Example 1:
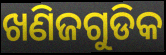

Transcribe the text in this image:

ଖଣିଜଗୁଡିକ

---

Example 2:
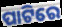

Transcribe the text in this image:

ପାଟିରେ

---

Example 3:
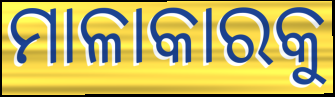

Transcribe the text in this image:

ମାଳାକାରକୁ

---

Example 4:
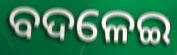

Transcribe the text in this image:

ବଦଳେଇ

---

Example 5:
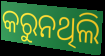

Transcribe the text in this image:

କରୁନଥିଲି